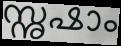
സ്നുഷാം